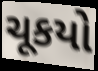
ચૂકયો